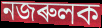
নজৰুলক